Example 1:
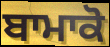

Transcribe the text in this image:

ਬਾਮਾਕੋ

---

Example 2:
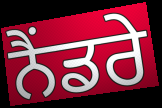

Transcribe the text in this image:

ਨੈਂਡਰੇ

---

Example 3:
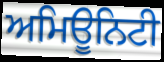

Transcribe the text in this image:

ਅਮਿਊਨਿਟੀ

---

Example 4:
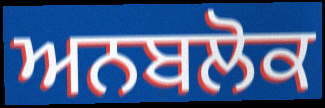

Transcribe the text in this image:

ਅਨਬਲੋਕ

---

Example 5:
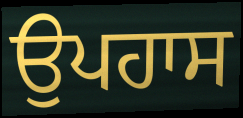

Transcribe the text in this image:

ਉਪਹਾਸ